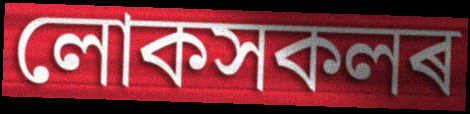
লোকসকলৰ